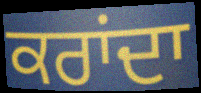
ਕਰਾਂਦਾ